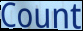
Count